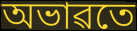
অভাৱতে